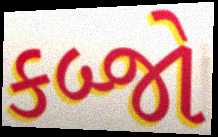
કબ્જો